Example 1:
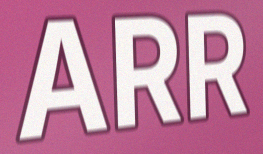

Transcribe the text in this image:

ARR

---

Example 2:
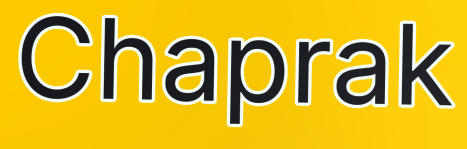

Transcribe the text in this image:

Chaprak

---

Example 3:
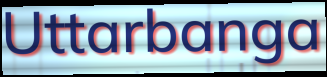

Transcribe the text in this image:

Uttarbanga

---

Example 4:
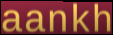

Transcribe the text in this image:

aankh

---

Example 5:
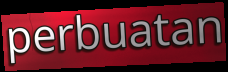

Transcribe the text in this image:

perbuatan